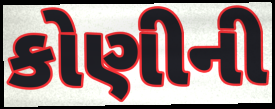
કોણીની